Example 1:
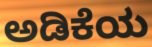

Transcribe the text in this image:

ಅಡಿಕೆಯ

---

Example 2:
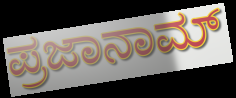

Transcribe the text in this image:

ಪ್ರಜಾನಾಮ್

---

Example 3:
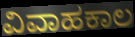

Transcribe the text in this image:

ವಿವಾಹಕಾಲ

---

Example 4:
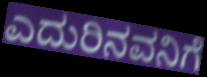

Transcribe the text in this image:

ಎದುರಿನವನಿಗೆ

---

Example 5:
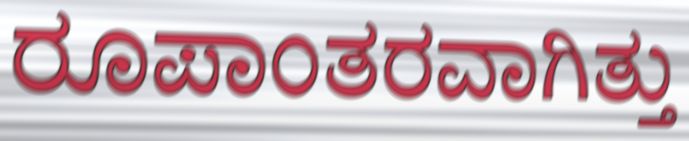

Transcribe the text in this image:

ರೂಪಾಂತರವಾಗಿತ್ತು